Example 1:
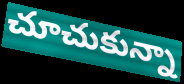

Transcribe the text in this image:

చూచుకున్నా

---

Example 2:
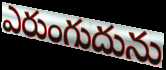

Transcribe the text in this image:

ఎరుంగుదును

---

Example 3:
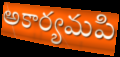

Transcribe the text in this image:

అకార్యమపి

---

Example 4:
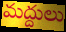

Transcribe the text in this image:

మద్దులు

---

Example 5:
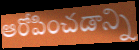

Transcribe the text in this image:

ఆరోపించడాన్ని